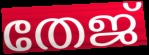
തേജ്